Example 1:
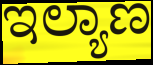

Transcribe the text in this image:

ಇಲ್ಯಾಣ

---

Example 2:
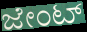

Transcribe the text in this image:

ಜೇಂಟ್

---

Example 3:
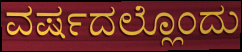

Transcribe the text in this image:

ವರ್ಷದಲ್ಲೊಂದು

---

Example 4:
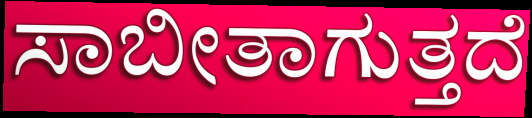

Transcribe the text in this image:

ಸಾಬೀತಾಗುತ್ತದೆ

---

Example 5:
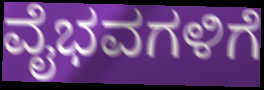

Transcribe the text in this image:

ವೈಭವಗಳಿಗೆ